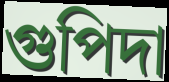
গুপিদা